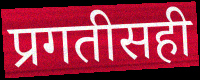
प्रगतीसही